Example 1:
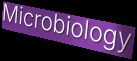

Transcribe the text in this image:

Microbiology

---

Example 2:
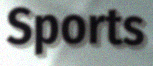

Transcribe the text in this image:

Sports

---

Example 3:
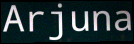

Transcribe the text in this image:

Arjuna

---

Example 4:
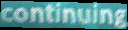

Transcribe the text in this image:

continuing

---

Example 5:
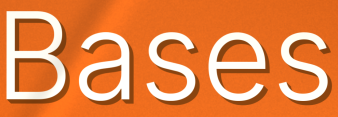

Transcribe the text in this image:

Bases